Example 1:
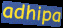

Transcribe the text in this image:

adhipa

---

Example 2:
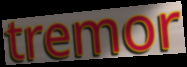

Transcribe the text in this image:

tremor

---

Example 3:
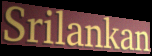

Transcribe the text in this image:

Srilankan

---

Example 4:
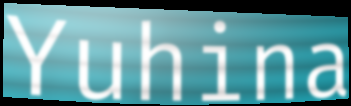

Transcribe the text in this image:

Yuhina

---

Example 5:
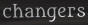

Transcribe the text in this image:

changers